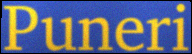
Puneri